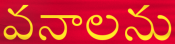
వనాలను